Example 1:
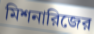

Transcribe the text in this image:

মিশনারিজের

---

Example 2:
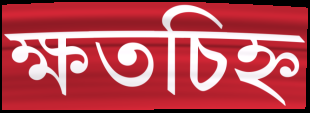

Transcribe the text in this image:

ক্ষতচিহ্ন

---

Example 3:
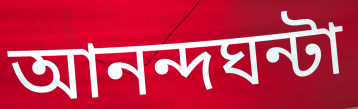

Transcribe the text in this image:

আনন্দঘন্টা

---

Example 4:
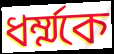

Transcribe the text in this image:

ধর্ম্মকে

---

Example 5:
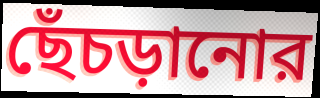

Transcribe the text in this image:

ছেঁচড়ানোর